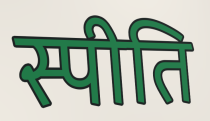
स्पीति